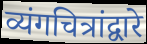
व्यंगचित्रांद्वारे